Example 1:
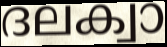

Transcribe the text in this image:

ദലക്വാ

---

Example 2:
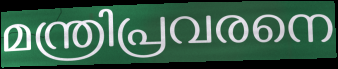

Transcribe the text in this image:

മന്ത്രിപ്രവരനെ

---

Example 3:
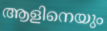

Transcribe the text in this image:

ആളിനെയും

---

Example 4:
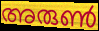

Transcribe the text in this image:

അരുൺ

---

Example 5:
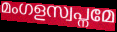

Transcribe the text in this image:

മംഗളസ്വപ്നമേ